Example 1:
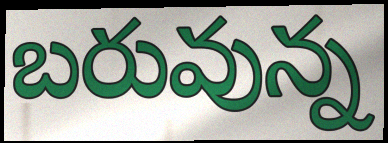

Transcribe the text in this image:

బరువున్న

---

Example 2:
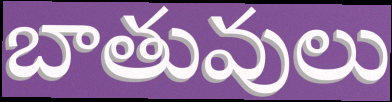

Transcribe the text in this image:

బాతువులు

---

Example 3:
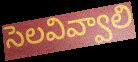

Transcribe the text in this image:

సెలవివ్వాలి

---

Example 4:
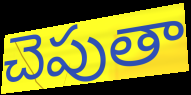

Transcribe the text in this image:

చెపుతా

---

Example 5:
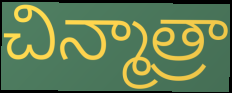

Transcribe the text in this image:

చిన్మాత్రా